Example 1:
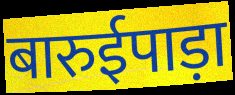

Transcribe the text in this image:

बारुईपाड़ा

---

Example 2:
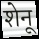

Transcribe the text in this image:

शेनू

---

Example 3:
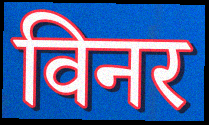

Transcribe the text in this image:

विनर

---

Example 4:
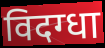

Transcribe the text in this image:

विदग्धा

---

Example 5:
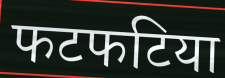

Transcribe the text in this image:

फटफटिया